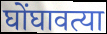
घोंघावत्या